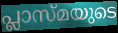
പ്ലാസ്മയുടെ